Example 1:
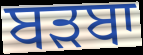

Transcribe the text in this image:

ਬੜਬਾ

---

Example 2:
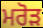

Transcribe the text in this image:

ਮਰੋੜ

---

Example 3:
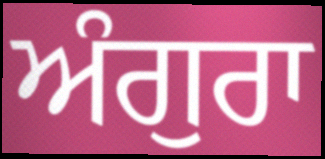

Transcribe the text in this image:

ਅੰਗੁਰਾ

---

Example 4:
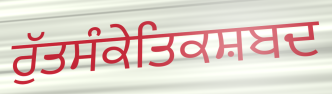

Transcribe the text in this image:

ਰੁੱਤਸੰਕੇਤਿਕਸ਼ਬਦ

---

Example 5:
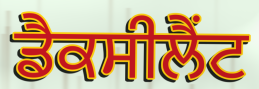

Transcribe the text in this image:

ਡੈਕਸੀਲੈਂਟ